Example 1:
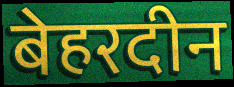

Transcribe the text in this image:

बेहरदीन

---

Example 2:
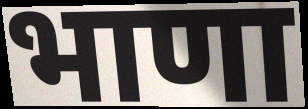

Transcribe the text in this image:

भाणा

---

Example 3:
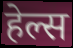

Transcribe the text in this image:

हेल्स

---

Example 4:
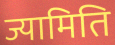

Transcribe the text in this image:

ज्यामिति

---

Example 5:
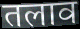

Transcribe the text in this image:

तलाव